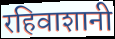
रहिवाशानी